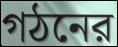
গঠনের